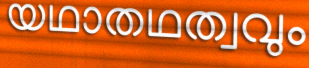
യഥാതഥത്വവും